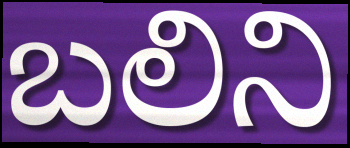
బలిని